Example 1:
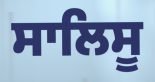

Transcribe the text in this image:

ਸਾਲਿਸੂ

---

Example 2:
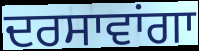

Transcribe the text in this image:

ਦਰਸਾਵਾਂਗਾ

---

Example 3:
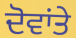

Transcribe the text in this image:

ਦੋਵਾਂਤੇ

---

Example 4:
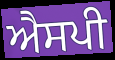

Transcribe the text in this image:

ਐਸਪੀ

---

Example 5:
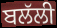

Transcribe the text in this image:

ਬਲੱਲੀ